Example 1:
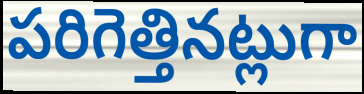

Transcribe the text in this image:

పరిగెత్తినట్లుగా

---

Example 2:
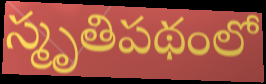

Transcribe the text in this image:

స్మృతిపథంలో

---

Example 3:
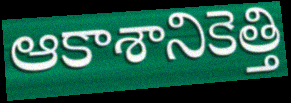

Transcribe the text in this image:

ఆకాశానికెత్తి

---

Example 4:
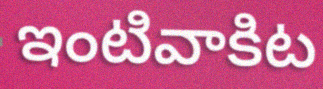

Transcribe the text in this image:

ఇంటివాకిట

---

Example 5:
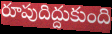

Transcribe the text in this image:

రూపుదిద్దుకుంది